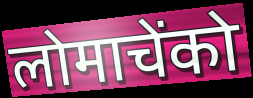
लोमाचेंको